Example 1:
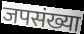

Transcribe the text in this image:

जपसंख्या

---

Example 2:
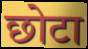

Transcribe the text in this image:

छोटा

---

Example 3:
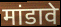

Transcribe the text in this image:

मांडावे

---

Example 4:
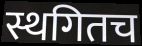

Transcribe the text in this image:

स्थगितच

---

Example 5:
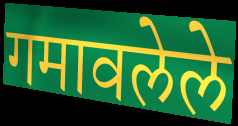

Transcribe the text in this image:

गमावलेले